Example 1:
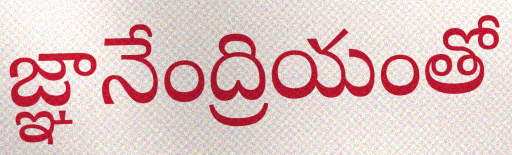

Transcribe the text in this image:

జ్ఞానేంద్రియంతో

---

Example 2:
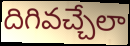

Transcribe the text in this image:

దిగివచ్చేలా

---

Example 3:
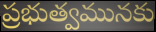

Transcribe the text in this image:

ప్రభుత్వమునకు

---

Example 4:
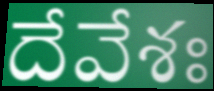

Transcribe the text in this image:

దేవేశః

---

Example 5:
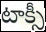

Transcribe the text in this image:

టాక్సీ